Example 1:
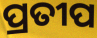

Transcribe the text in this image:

ପ୍ରତୀପ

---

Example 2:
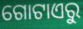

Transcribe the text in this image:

ଗୋଟାଏରୁ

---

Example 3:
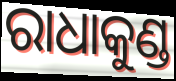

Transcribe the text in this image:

ରାଧାକୁଣ୍ଡ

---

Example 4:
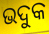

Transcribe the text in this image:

ଭଦୁକ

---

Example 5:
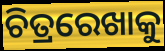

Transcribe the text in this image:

ଚିତ୍ରରେଖାକୁ